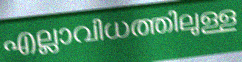
എല്ലാവിധത്തിലുള്ള